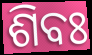
ଶିବଃ